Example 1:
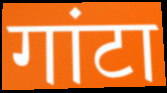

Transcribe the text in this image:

गांटा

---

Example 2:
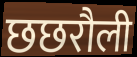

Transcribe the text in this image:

छछरौली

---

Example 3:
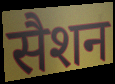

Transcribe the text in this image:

सैशन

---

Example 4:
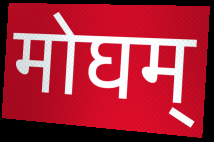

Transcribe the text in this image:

मोघम्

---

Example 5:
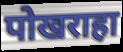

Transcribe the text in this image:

पोखराहा